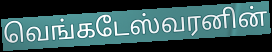
வெங்கடேஸ்வரனின்